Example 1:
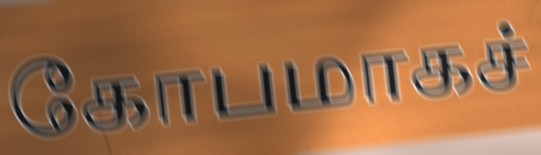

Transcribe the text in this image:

கோபமாகச்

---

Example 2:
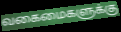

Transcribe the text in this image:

வகைமைகளுக்கு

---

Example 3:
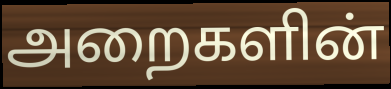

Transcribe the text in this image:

அறைகளின்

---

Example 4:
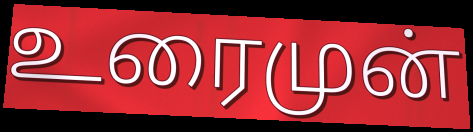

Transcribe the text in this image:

உரைமுன்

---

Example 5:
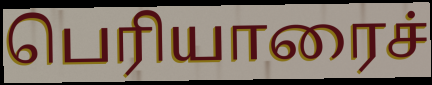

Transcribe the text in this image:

பெரியாரைச்